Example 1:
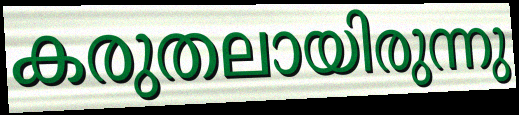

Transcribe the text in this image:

കരുതലായിരുന്നു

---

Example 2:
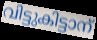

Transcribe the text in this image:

വിട്ടുകിട്ടാന്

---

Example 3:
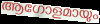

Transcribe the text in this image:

ആഗോളമായും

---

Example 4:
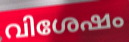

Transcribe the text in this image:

വിശേഷം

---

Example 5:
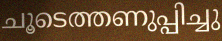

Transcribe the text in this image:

ചൂടെത്തണുപ്പിച്ചു